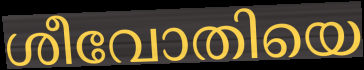
ശീവോതിയെ